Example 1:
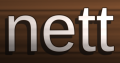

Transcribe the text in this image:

nett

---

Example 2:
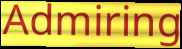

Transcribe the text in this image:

Admiring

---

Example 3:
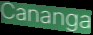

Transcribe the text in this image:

Cananga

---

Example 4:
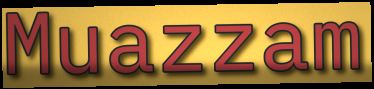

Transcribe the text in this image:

Muazzam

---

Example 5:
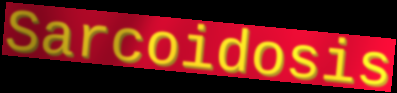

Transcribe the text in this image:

Sarcoidosis